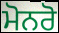
ਮੋਨਰੋ